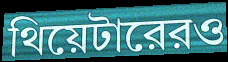
থিয়েটারেরও